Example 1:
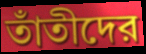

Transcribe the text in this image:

তাঁতীদের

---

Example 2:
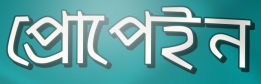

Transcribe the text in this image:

প্রোপেইন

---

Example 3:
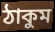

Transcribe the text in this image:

ঠাকুম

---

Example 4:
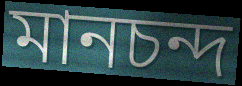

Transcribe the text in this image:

মানচন্দ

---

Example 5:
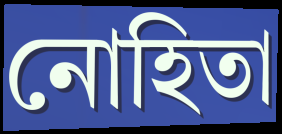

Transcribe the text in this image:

নোহিতা